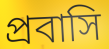
প্রবাসি